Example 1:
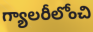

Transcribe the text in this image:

గ్యాలరీలోంచి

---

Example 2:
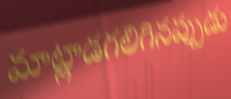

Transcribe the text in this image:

మాట్లాడగలిగినప్పుడు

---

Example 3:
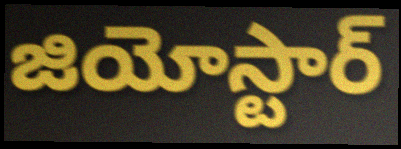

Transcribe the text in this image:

జియోస్టార్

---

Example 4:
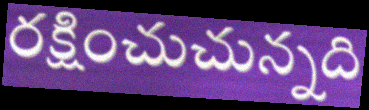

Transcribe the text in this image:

రక్షించుచున్నది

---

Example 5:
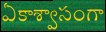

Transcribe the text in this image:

ఏకాశ్వాసంగా